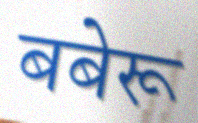
बबेरू